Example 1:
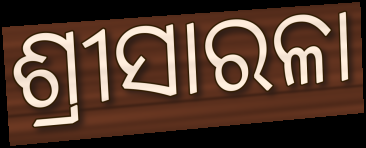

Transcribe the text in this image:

ଶ୍ରୀସାରଳା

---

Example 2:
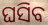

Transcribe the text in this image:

ଘସିବ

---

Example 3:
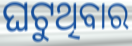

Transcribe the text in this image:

ଘଟୁଥିବାର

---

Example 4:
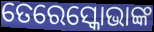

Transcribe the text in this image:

ତେରେସ୍କୋଭାଙ୍କ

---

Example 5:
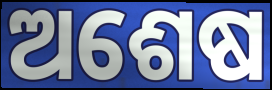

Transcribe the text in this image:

ଅଶେଷ